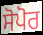
ਸੋਪੋਰ